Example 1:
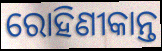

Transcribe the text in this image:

ରୋହିଣୀକାନ୍ତ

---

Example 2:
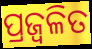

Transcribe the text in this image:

ପ୍ରଜ୍ୱଳିତ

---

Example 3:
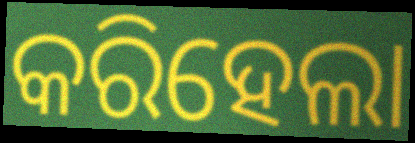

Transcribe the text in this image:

କରିହେଲା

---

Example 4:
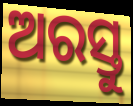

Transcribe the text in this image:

ଅରସ୍ତୁ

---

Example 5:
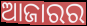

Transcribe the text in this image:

ଆଜାରର